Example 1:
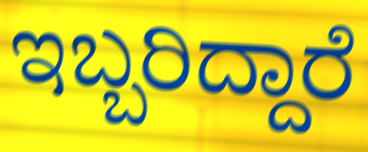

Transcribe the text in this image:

ಇಬ್ಬರಿದ್ದಾರೆ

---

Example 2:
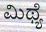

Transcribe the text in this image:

ಮಿಥ್ಯೆ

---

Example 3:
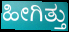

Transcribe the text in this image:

ಹೀಗಿತ್ತು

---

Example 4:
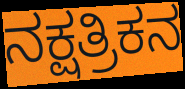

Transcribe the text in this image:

ನಕ್ಷತ್ರಿಕನ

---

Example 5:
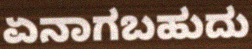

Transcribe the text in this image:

ಏನಾಗಬಹುದು